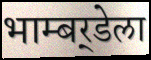
भाम्बर्डेला